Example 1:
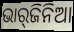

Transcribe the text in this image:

ଭାର୍‌ଜିନିଆ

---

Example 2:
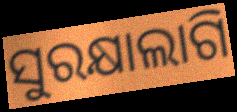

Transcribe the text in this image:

ସୁରକ୍ଷାଲାଗି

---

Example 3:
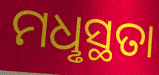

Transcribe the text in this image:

ମଧୢସ୍ଥତା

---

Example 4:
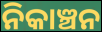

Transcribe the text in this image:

ନିକାଞ୍ଚନ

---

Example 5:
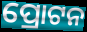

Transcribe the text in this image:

ପ୍ରୋଟନ